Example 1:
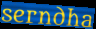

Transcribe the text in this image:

serndha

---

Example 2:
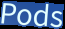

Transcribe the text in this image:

Pods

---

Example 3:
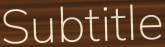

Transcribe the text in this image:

Subtitle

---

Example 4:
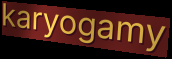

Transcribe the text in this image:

karyogamy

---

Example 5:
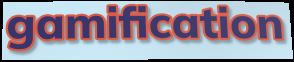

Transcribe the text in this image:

gamification